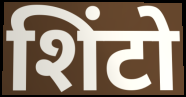
शिंटो